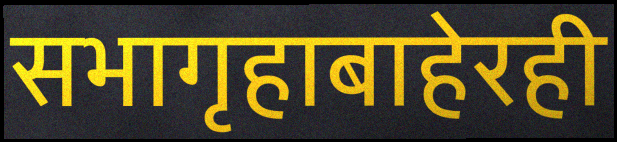
सभागृहाबाहेरही